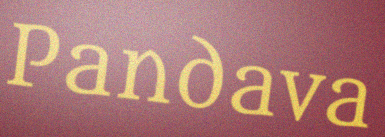
Pandava